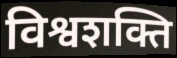
विश्वशक्ति